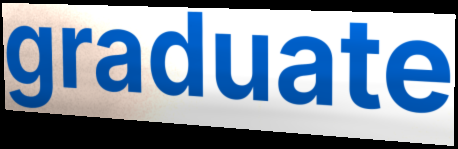
graduate